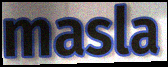
masla